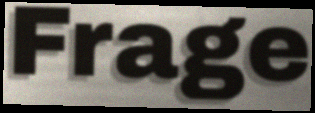
Frage